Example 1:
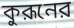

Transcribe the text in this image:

কুরূনের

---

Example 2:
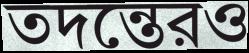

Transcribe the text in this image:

তদন্তেরও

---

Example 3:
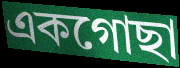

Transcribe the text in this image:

একগোছা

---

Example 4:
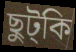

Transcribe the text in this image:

ছুট্কি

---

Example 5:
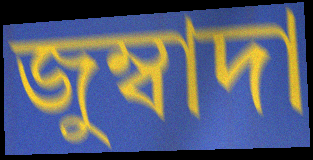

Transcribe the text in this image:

জুম্বাদা